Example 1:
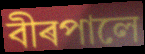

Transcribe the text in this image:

বীৰপালে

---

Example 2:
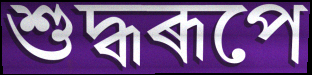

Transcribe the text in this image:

শুদ্ধৰূপে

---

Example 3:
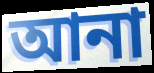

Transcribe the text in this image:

আনা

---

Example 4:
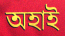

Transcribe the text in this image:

অহাই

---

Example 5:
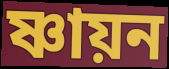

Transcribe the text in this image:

ষ্ণায়ন